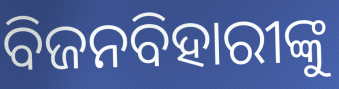
ବିଜନବିହାରୀଙ୍କୁ